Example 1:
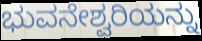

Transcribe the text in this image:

ಭುವನೇಶ್ವರಿಯನ್ನು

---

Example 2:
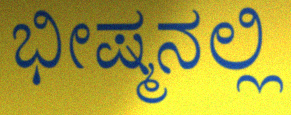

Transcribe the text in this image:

ಭೀಷ್ಮನಲ್ಲಿ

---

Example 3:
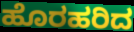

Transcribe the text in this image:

ಹೊರಹರಿದ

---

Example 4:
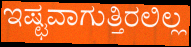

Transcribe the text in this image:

ಇಷ್ಟವಾಗುತ್ತಿರಲಿಲ್ಲ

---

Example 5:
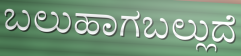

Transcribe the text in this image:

ಬಲುಹಾಗಬಲ್ಲುದೆ